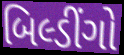
બિલ્ડીંગો